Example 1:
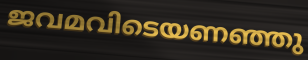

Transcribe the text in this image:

ജവമവിടെയണഞ്ഞു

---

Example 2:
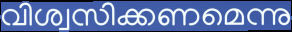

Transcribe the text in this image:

വിശ്വസിക്കണമെന്നു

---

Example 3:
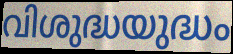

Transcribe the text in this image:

വിശുദ്ധയുദ്ധം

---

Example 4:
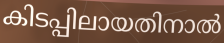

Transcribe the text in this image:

കിടപ്പിലായതിനാൽ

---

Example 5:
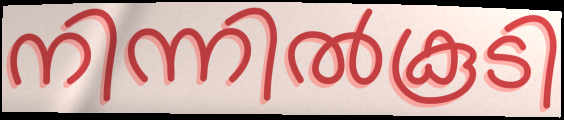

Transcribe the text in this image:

നിന്നിൽകൂടി